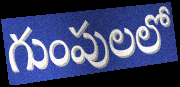
గుంపులలో